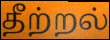
தீற்றல்